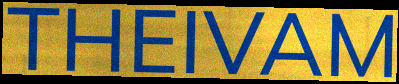
THEIVAM